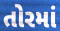
તોરમાં